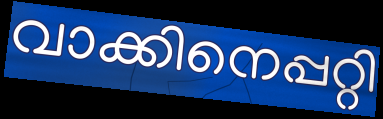
വാക്കിനെപ്പറ്റി